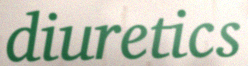
diuretics